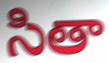
సితా